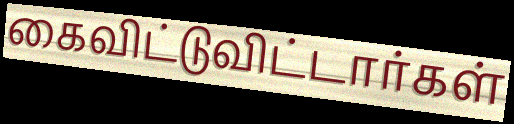
கைவிட்டுவிட்டார்கள்